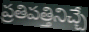
ప్రతిపత్తినిచ్చే